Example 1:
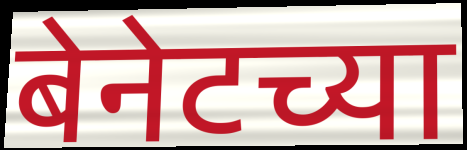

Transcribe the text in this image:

बेनेटच्या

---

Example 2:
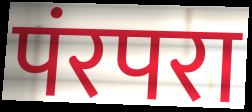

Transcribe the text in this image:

पंरपरा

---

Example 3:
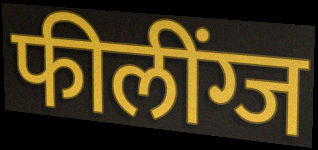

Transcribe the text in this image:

फीलींग्ज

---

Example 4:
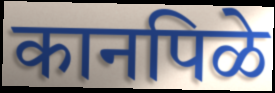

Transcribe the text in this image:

कानपिळे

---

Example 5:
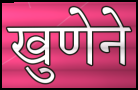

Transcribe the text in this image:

खुणेने